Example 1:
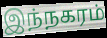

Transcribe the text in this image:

இந்நகரம்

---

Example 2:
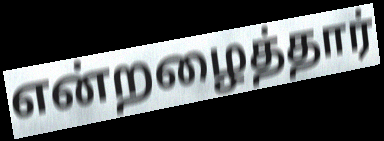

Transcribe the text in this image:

என்றழைத்தார்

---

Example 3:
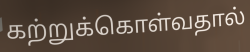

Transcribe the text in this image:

கற்றுக்கொள்வதால்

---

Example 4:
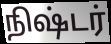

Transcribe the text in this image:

நிஷ்டர்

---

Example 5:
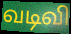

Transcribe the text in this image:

வடிவி